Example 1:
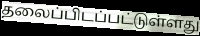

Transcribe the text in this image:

தலைப்பிடப்பட்டுள்ளது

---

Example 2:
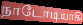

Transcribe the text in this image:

நாடோடியாகி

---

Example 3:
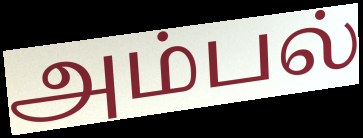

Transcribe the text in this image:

அம்பல்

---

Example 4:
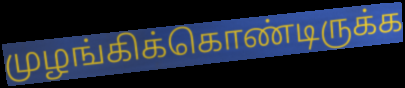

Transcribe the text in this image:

முழங்கிக்கொண்டிருக்க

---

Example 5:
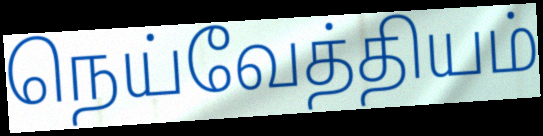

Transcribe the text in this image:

நெய்வேத்தியம்